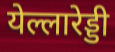
येल्लारेड्डी